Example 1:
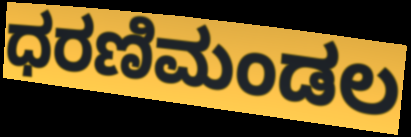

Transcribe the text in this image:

ಧರಣಿಮಂಡಲ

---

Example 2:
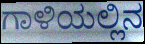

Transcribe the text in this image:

ಗಾಳಿಯಲ್ಲಿನ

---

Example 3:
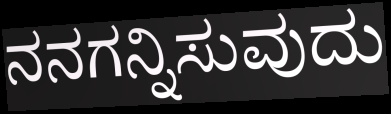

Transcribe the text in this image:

ನನಗನ್ನಿಸುವುದು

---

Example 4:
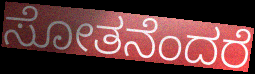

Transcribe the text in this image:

ಸೋತನೆಂದರೆ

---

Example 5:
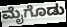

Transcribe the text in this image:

ಮೈಗೊಡು